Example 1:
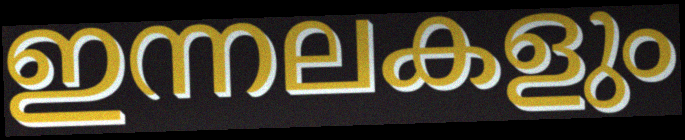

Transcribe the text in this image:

ഇന്നലകളും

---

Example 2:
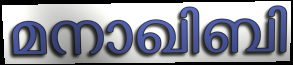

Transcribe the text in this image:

മനാഖിബി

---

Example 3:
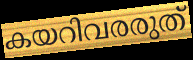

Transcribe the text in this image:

കയറിവരരുത്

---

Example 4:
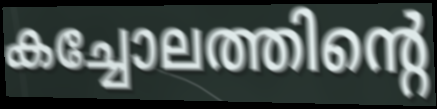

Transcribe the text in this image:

കച്ചോലത്തിന്റെ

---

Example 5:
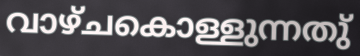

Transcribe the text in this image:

വാഴ്ചകൊള്ളുന്നതു്